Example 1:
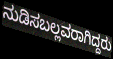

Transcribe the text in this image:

ನುಡಿಸಬಲ್ಲವರಾಗಿದ್ದರು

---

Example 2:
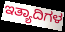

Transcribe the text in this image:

ಇತ್ಯಾದಿಗಳ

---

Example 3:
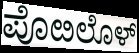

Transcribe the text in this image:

ಪೊೞಲೊಳ್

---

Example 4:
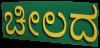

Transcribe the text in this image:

ಚೀಲದ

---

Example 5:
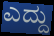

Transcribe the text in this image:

ಎದ್ದು